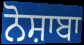
ਨੋਸ਼ਾਬਾ